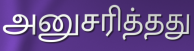
அனுசரித்தது